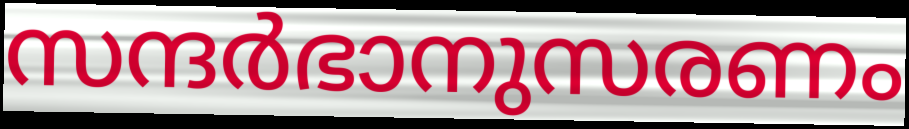
സന്ദർഭാനുസരണം